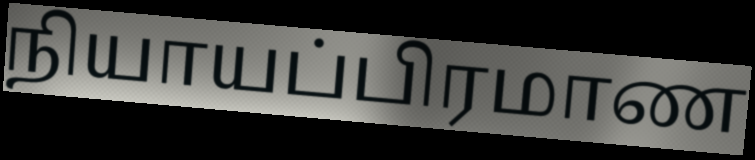
நியாயப்பிரமாண